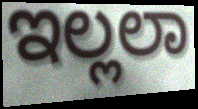
ಇಲ್ಲಲಾ